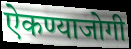
ऐकण्याजोगी